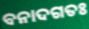
ବନାଦଗତଃ